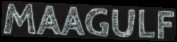
MAAGULF